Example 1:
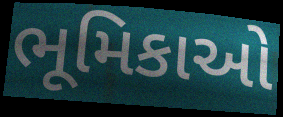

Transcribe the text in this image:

ભૂમિકાઓ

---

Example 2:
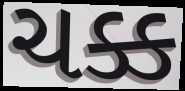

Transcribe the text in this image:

ચક્ક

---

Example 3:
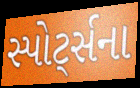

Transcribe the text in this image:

સ્પોર્ટ્સના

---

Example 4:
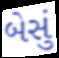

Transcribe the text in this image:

બેસું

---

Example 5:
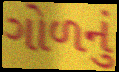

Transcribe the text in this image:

ગોળનું